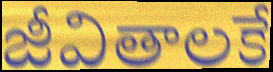
జీవితాలకే